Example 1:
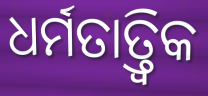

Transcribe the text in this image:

ଧର୍ମତାତ୍ତ୍ଵିକ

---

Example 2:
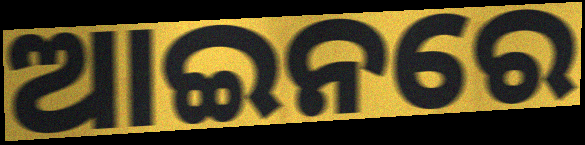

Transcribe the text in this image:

ଆଇନରେ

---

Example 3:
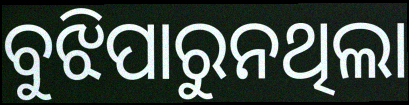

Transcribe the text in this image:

ବୁଝିପାରୁନଥିଲା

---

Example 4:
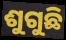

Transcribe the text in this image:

ଶୁଗୁଛି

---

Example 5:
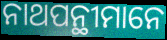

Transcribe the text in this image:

ନାଥପନ୍ଥୀମାନେ